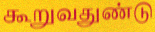
கூறுவதுண்டு